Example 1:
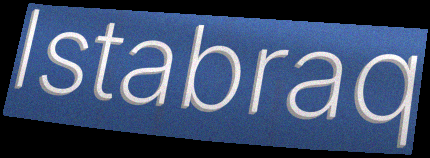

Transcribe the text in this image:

Istabraq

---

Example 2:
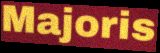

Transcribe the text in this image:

Majoris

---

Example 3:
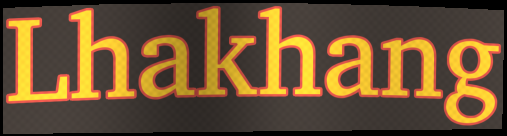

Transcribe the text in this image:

Lhakhang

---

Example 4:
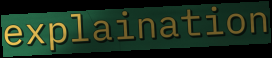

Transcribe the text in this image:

explaination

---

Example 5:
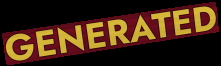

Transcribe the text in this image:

GENERATED